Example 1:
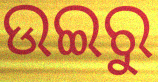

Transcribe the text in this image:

ଉଇରୁ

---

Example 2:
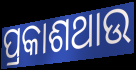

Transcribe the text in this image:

ପ୍ରକାଶଥାଉ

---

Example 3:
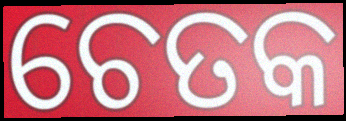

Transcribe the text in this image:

ଚେତକ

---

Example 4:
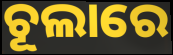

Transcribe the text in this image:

ଚୂଲାରେ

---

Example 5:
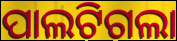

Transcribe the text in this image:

ପାଲଟିଗଲା